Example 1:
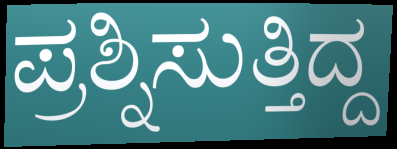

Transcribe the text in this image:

ಪ್ರಶ್ನಿಸುತ್ತಿದ್ದ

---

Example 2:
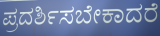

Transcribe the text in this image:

ಪ್ರದರ್ಶಿಸಬೇಕಾದರೆ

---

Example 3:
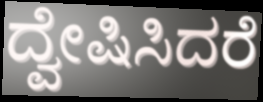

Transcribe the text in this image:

ದ್ವೇಷಿಸಿದರೆ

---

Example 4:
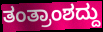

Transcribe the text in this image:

ತಂತ್ರಾಂಶದ್ದು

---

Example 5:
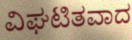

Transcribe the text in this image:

ವಿಘಟಿತವಾದ